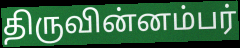
திருவின்னம்பர்